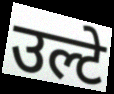
उल्टे